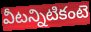
వీటన్నిటికంటె